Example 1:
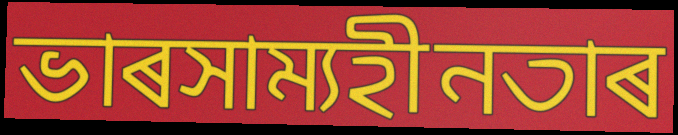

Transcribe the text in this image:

ভাৰসাম্যহীনতাৰ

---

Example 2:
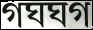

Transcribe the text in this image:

গঘঘগ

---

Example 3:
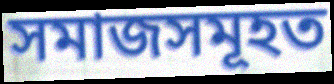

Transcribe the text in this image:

সমাজসমূহত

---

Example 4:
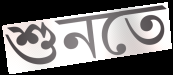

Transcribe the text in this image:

শুনতে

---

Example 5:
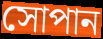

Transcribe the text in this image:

সোপান